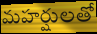
మహర్షులతో